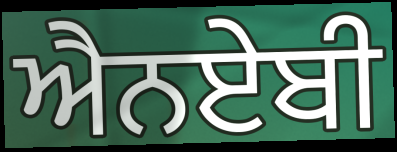
ਐਨਏਬੀ